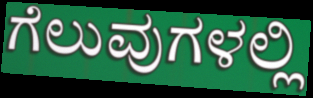
ಗೆಲುವುಗಳಲ್ಲಿ